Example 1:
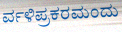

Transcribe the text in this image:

ರ್ವಳಿಪ್ರಕರಮಂದು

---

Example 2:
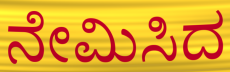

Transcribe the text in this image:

ನೇಮಿಸಿದ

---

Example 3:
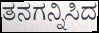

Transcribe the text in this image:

ತನಗನ್ನಿಸಿದ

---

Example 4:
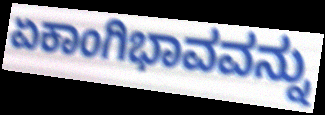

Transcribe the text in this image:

ಏಕಾಂಗಿಭಾವವನ್ನು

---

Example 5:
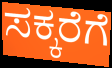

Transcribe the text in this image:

ಸಕ್ಕರೆಗೆ